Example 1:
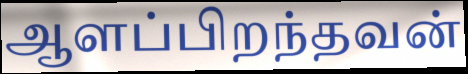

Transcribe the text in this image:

ஆளப்பிறந்தவன்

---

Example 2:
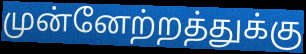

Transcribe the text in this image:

முன்னேற்றத்துக்கு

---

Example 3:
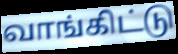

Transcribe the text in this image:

வாங்கிட்டு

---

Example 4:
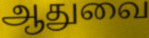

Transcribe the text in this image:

ஆதுவை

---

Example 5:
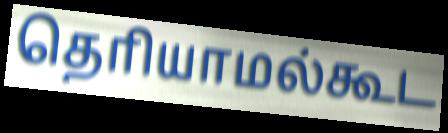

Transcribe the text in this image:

தெரியாமல்கூட